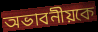
অভাবনীয়কে